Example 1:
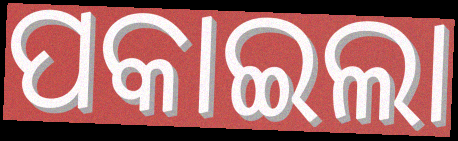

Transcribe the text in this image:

ପକାଇଲା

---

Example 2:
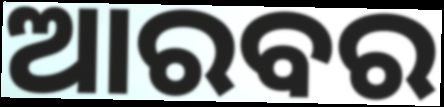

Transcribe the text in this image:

ଆରବର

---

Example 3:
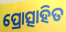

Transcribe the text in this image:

ପ୍ରୋତ୍ସାହିତ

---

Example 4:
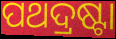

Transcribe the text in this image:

ପଥଦ୍ରଷ୍ଟା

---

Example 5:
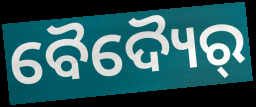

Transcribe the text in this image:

ବୈଦ୍ୟୈର୍